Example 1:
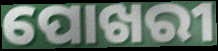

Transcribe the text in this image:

ପୋଖରୀ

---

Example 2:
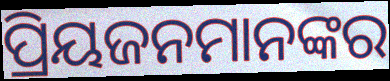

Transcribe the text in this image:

ପ୍ରିୟଜନମାନଙ୍କର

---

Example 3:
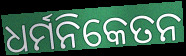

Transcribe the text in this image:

ଧର୍ମନିକେତନ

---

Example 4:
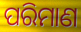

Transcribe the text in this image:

ପରିମାଣ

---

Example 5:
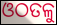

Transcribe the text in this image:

ଓଠତଳୁ